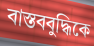
বাস্তববুদ্ধিকে